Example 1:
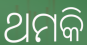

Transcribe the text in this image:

ଥମକି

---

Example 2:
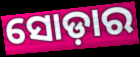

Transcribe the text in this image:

ସୋଡ଼ାର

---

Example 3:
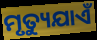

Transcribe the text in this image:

ମୃତ୍ୟୁଯାଏଁ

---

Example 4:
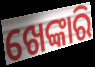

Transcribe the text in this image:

ଖେଙ୍କାରି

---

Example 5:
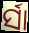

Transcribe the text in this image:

ର୍ସା